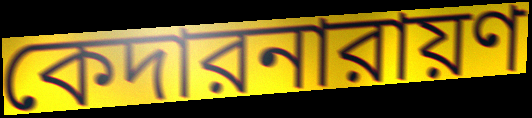
কেদারনারায়ণ